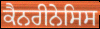
ਕੈਨਰੀਨੇਸਿਸ